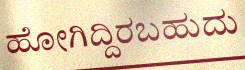
ಹೋಗಿದ್ದಿರಬಹುದು